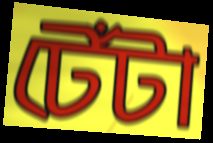
টেঁটা